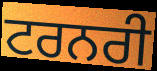
ਟਰਨਰੀ